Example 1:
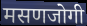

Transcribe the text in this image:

मसणजोगी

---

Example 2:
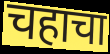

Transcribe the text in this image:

चहाचा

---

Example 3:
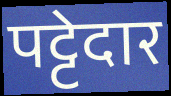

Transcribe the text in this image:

पट्टेदार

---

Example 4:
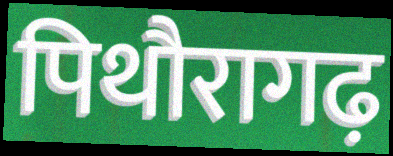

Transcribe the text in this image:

पिथौरागढ़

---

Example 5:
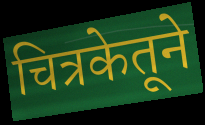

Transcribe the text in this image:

चित्रकेतूने